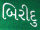
બિરીદુ